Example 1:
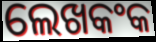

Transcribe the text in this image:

ଲେଖକଂକ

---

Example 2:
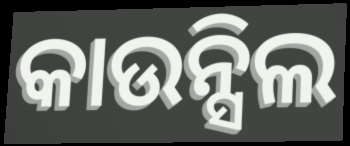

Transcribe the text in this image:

କାଉନ୍ସିଲ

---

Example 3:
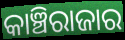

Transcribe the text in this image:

କାଞ୍ଚିରାଜାର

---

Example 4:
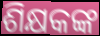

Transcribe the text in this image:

ଶିକ୍ଷକଙ୍କ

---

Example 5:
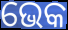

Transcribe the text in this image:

ଭେକ